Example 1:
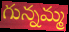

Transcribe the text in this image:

గున్నమ్మ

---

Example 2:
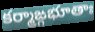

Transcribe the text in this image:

కర్మాఙ్గభూతాః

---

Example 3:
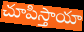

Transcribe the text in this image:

చూపిస్తాయా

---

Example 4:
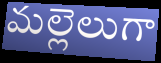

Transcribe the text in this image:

మల్లెలుగా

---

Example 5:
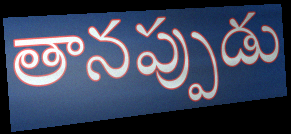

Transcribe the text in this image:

తానప్పుడు